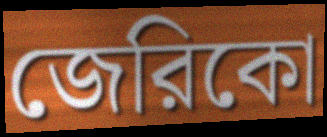
জেরিকো